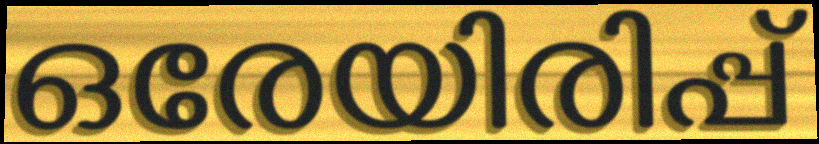
ഒരേയിരിപ്പ്